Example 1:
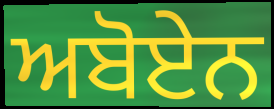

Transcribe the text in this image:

ਅਬੋਏਨ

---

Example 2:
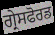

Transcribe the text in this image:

ਗ੍ਰੇਸਫੋਰਡ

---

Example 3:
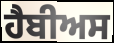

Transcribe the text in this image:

ਹੈਬੀਅਸ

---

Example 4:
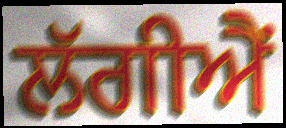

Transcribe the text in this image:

ਲੱਗੀਐਂ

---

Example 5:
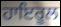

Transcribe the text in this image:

ਹਾਇਰੂਲ